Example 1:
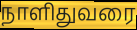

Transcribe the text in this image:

நாளிதுவரை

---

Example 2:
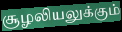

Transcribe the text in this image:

சூழலியலுக்கும்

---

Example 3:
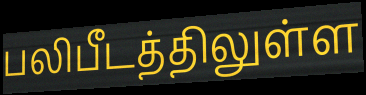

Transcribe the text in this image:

பலிபீடத்திலுள்ள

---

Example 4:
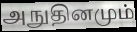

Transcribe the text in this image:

அநுதினமும்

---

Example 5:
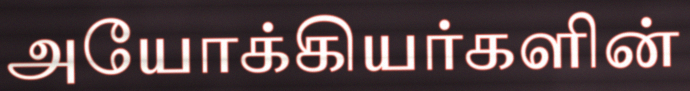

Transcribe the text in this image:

அயோக்கியர்களின்